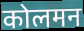
कोलमन